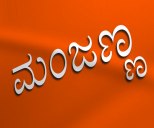
ಮಂಜಣ್ಣ